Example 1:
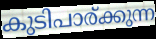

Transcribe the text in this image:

കുടിപാര്ക്കുന്ന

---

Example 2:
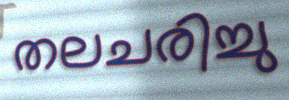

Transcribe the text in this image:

തലചരിച്ചു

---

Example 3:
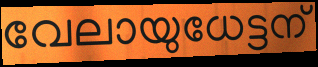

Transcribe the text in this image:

വേലായുധേട്ടന്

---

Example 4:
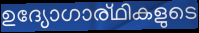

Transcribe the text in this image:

ഉദ്യോഗാര്ഥികളുടെ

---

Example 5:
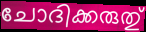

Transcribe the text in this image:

ചോദിക്കരുതു്